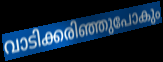
വാടിക്കരിഞ്ഞുപോകും